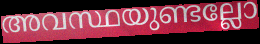
അവസ്ഥയുണ്ടല്ലോ